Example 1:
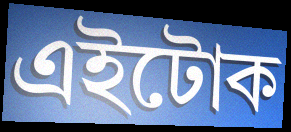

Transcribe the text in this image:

এইটোক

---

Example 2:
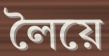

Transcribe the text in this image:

লৈয়ে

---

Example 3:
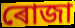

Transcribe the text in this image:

ৰোজা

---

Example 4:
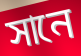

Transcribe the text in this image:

সানে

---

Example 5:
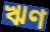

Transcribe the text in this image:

ঋণ